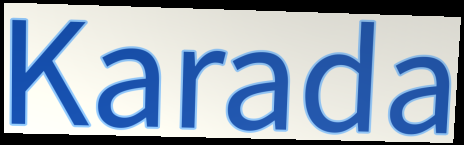
Karada